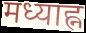
मध्याह्न